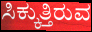
ಸಿಕ್ಕುತ್ತಿರುವ